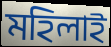
মহিলাই